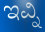
ಇವ್ನಿ